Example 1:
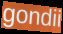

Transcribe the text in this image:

gondii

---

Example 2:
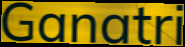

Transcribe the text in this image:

Ganatri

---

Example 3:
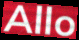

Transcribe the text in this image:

Allo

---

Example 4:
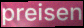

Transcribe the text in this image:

preisen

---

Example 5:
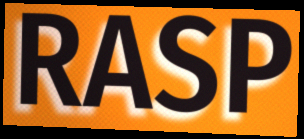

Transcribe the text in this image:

RASP